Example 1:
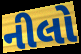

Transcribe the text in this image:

નીલો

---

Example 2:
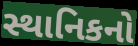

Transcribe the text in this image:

સ્થાનિકનો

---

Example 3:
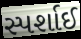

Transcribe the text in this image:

સ્પર્શાઈ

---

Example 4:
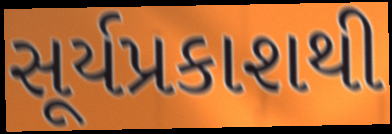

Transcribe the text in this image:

સૂર્યપ્રકાશથી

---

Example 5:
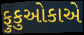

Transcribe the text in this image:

ફુકુઓકાએ